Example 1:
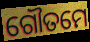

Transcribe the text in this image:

ଗୌତମେ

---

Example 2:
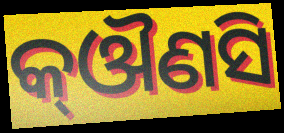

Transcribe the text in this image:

କ୍ଔଣସି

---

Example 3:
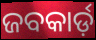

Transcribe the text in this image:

ଜବକାର୍ଡ଼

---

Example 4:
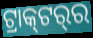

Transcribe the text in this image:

ଟ୍ରାକ୍‍ଟର୍‍ର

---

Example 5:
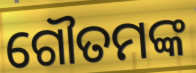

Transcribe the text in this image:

ଗୌତମଙ୍କ